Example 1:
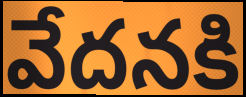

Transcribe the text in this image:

వేదనకి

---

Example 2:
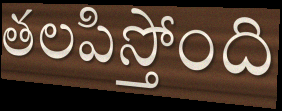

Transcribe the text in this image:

తలపిస్తోంది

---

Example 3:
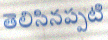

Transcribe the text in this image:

తెలిసినప్పటి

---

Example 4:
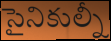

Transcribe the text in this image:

సైనికుల్నీ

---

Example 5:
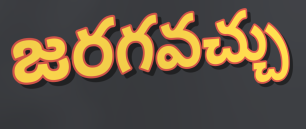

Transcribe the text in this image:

జరగవచ్చు